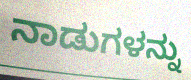
ನಾಡುಗಳನ್ನು